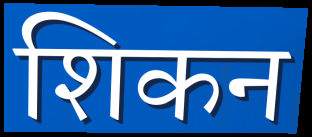
शिकन